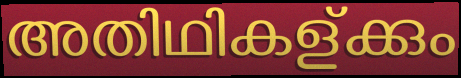
അതിഥികള്ക്കും